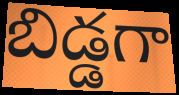
బిడ్డగా